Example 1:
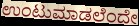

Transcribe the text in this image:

ಉಂಟುಮಾಡಲೆಂದೇ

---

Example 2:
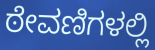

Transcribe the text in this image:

ಠೇವಣಿಗಳಲ್ಲಿ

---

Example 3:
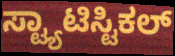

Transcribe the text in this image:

ಸ್ಟ್ಯಾಟಿಸ್ಟಿಕಲ್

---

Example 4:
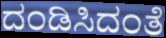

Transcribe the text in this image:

ದಂಡಿಸಿದಂತೆ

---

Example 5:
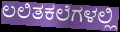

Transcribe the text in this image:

ಲಲಿತಕಲೆಗಳಲ್ಲಿ